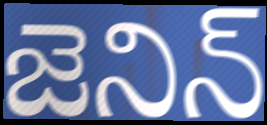
జెనిన్